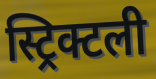
स्ट्रिक्टली